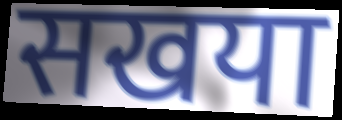
सखया